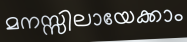
മനസ്സിലായേക്കാം